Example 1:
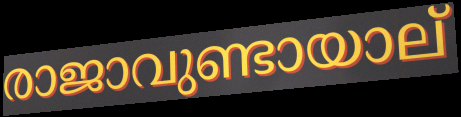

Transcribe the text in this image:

രാജാവുണ്ടായാല്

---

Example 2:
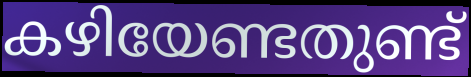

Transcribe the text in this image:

കഴിയേണ്ടതുണ്ട്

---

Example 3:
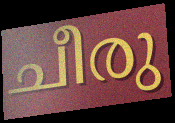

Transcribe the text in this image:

ചീരു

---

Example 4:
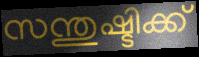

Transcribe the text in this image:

സന്തുഷ്ടിക്ക്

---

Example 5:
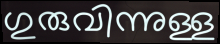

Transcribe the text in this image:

ഗുരുവിന്നുള്ള